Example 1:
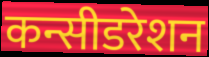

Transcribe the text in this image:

कन्सीडरेशन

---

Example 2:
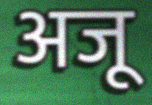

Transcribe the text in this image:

अजू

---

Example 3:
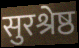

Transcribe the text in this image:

सुरश्रेष्ठ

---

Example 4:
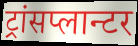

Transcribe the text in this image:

ट्रांसप्लान्टर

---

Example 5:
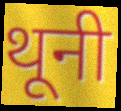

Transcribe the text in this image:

थूनी